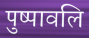
पुष्पावलि